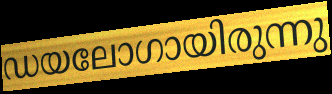
ഡയലോഗായിരുന്നു